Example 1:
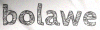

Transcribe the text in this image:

bolawe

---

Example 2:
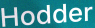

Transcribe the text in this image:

Hodder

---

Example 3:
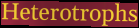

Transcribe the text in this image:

Heterotrophs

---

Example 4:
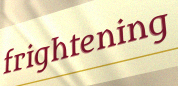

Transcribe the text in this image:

frightening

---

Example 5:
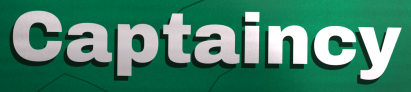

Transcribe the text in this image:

Captaincy